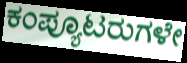
ಕಂಪ್ಯೂಟರುಗಳೇ